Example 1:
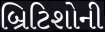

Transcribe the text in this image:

બ્રિટિશોની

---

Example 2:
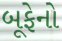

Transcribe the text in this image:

બૂફેનો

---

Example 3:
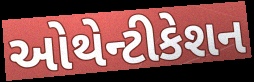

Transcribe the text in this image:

ઓથેન્ટીકેશન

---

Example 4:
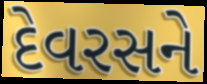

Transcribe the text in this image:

દેવરસને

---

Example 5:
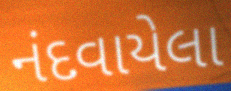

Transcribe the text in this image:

નંદવાયેલા